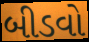
બીડવો